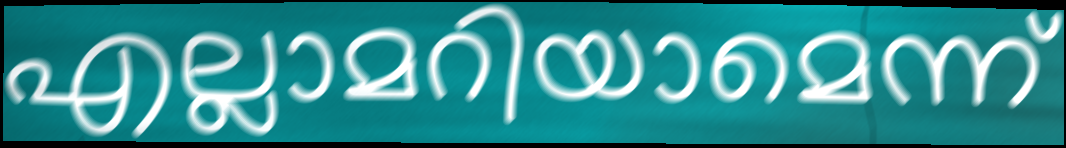
എല്ലാമറിയാമെന്ന്